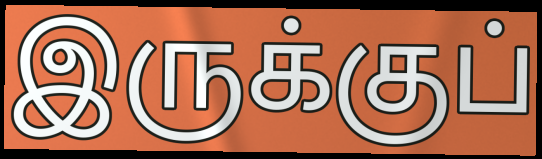
இருக்குப்